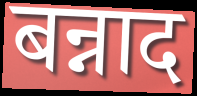
बन्नाद